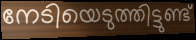
നേടിയെടുത്തിട്ടുണ്ട്